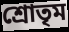
শ্রোতৃম